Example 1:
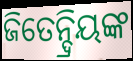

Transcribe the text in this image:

ଜିତେନ୍ଦ୍ରିୟଙ୍କ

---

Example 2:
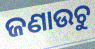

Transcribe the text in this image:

ଜଣାଉଚୁ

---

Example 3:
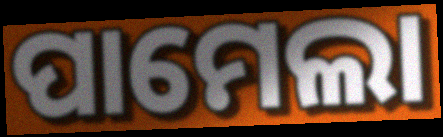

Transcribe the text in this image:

ପାମେଲା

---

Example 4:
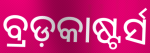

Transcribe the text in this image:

ବ୍ରଡ଼କାଷ୍ଟର୍ସ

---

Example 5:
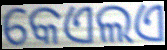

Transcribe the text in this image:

କେଏଲଏ